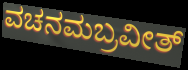
ವಚನಮಬ್ರವೀತ್